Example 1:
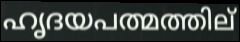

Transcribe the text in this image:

ഹൃദയപത്മത്തില്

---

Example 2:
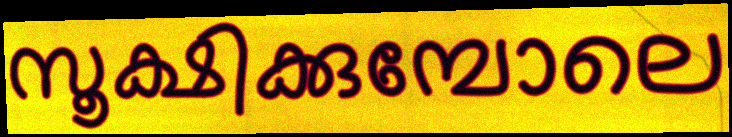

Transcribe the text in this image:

സൂക്ഷിക്കുമ്പോലെ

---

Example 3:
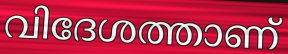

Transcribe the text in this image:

വിദേശത്താണ്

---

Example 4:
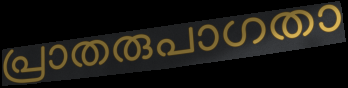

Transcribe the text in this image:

പ്രാതരുപാഗതാ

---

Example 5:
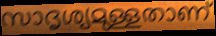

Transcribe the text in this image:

സാദൃശ്യമുള്ളതാണ്